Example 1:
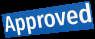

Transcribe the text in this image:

Approved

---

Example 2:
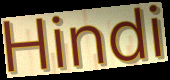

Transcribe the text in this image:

Hindi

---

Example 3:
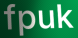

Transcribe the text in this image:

fpuk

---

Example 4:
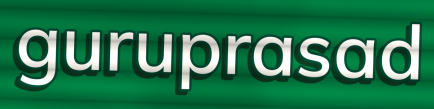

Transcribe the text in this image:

guruprasad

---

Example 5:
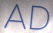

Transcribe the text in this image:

AD